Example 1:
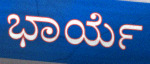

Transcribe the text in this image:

ಭಾರ್ಯೆ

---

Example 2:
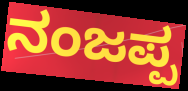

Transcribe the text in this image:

ನಂಜಪ್ಪ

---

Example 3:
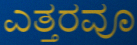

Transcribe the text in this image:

ಎತ್ತರವೂ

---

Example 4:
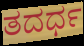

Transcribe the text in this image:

ತದರ್ಧ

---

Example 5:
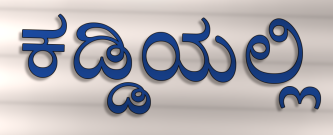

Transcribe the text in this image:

ಕಡ್ಡಿಯಲ್ಲಿ